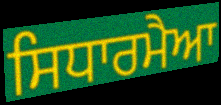
ਸਿਧਾਰਮੈਆ